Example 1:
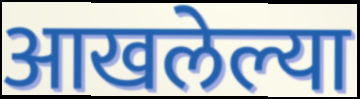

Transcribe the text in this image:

आखलेल्या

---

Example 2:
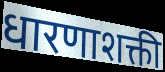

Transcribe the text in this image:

धारणाशक्ती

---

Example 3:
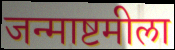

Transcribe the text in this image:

जन्माष्टमीला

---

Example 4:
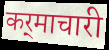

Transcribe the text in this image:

कर्माचारी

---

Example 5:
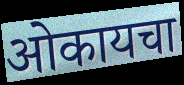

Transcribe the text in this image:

ओकायचा